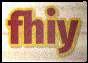
fhiy